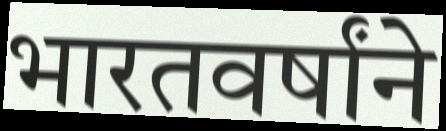
भारतवर्षांने